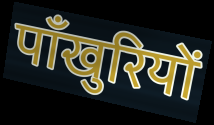
पाँखुरियों